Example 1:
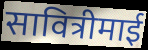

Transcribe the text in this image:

सावित्रीमाई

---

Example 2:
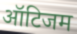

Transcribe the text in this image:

ऑटिजम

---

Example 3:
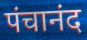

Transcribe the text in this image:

पंचानंद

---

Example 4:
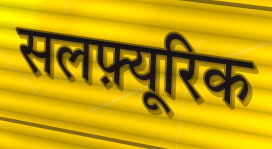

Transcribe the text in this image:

सलफ़्यूरिक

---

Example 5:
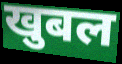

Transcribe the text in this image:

खुबल